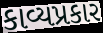
કાવ્યપ્રકાર